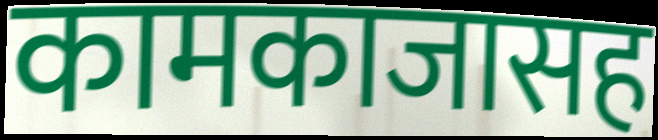
कामकाजासह